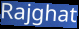
Rajghat